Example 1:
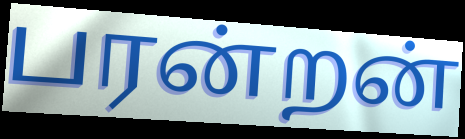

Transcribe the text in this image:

பரன்றன்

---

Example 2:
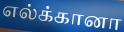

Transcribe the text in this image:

எல்க்கானா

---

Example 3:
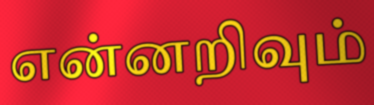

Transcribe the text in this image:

என்னறிவும்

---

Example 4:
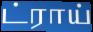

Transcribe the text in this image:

ட்ராய்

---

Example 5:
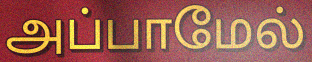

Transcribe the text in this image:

அப்பாமேல்